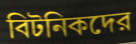
বিটনিকদের